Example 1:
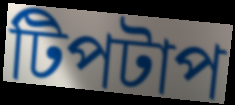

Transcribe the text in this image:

টিপটাপ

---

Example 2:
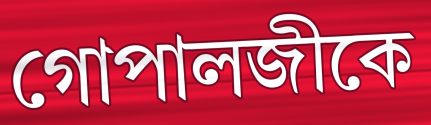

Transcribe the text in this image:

গোপালজীকে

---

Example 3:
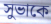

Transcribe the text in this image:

সুভাকে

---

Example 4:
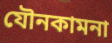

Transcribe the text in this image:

যৌনকামনা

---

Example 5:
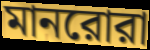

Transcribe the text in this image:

মানরোরা